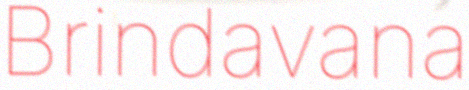
Brindavana